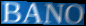
BANO